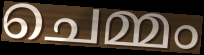
ചെമ്മം